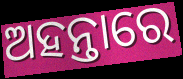
ଅହନ୍ତାରେ